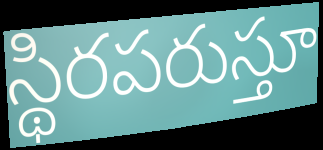
స్థిరపరుస్తూ